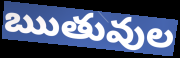
ఋతువుల